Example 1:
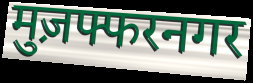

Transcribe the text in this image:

मुज़फ्फरनगर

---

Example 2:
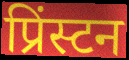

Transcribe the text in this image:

प्रिंस्टन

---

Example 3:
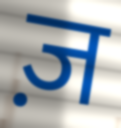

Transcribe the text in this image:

ज़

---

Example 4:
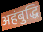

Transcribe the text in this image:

अहंबुद्धि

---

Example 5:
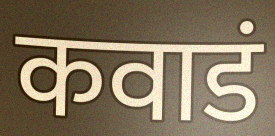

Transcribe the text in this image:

कवाडं